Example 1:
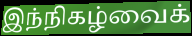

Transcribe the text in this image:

இந்நிகழ்வைக்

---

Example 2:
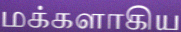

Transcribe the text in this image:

மக்களாகிய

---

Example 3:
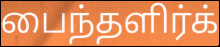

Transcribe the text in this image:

பைந்தளிர்க்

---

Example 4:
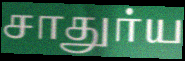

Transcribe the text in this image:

சாதுர்ய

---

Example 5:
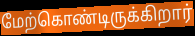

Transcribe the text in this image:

மேற்கொண்டிருக்கிறார்